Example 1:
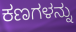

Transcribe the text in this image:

ಕಣಗಳನ್ನು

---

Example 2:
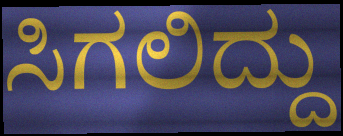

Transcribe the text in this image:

ಸಿಗಲಿದ್ದು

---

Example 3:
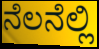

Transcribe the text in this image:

ನೆಲನೆಲ್ಲಿ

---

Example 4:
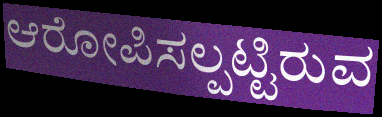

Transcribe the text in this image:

ಆರೋಪಿಸಲ್ಪಟ್ಟಿರುವ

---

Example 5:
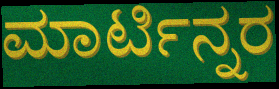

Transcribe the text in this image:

ಮಾರ್ಟಿನ್ನರ